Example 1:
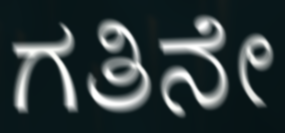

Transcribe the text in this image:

ಗತಿನೇ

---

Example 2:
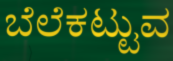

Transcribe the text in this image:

ಬೆಲೆಕಟ್ಟುವ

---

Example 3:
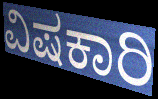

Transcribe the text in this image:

ವಿಷಕಾರಿ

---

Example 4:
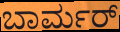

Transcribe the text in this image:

ಬಾರ್ಮರ್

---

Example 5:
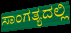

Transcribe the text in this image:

ಸಾಂಗತ್ಯದಲ್ಲಿ